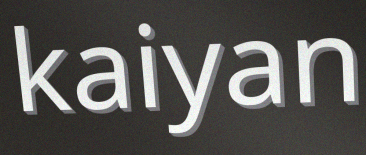
kaiyan